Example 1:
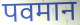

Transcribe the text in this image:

पवमान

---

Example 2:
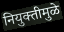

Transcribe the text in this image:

नियुक्तीमुळे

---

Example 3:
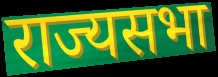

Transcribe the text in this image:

राज्यसभा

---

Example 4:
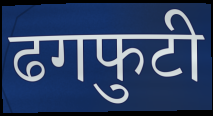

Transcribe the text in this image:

ढगफुटी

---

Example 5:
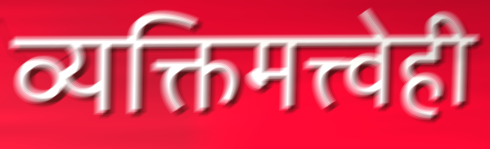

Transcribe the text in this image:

व्यक्तिमत्त्वेही